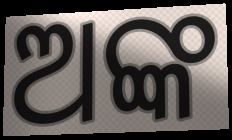
ଅଙ୍କ